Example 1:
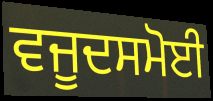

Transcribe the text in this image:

ਵਜੂਦਸਮੋਈ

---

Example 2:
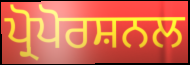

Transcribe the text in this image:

ਪ੍ਰੋਪੋਰਸ਼ਨਲ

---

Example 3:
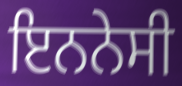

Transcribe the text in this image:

ਇਨਨੇਸੀ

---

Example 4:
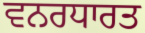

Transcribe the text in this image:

ਵਨਰਧਾਰਤ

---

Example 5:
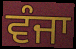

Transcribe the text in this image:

ਵੰਜਾ